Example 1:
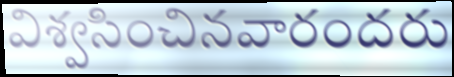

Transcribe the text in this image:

విశ్వసించినవారందరు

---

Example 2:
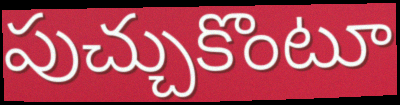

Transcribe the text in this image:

పుచ్చుకొంటూ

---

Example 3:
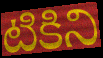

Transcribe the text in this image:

టికిని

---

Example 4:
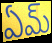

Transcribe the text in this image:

ఏమ్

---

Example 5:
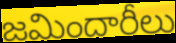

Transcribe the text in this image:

జమిందారీలు